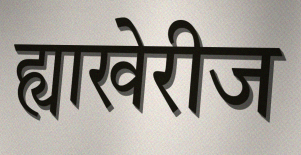
ह्याखेरीज